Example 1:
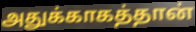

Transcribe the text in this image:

அதுக்காகத்தான்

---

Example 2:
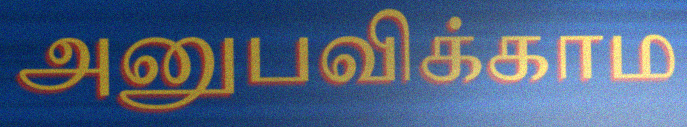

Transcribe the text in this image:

அனுபவிக்காம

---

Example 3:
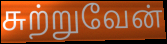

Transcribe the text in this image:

சுற்றுவேன்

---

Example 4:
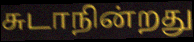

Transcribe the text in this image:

சுடாநின்றது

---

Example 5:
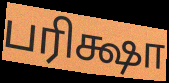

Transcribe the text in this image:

பரிக்ஷா